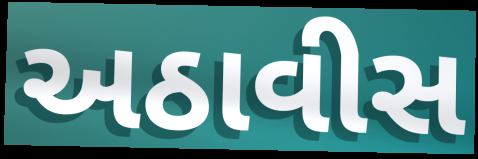
અઠાવીસ